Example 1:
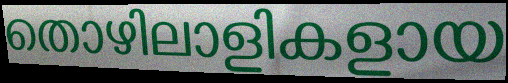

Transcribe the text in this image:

തൊഴിലാളികളായ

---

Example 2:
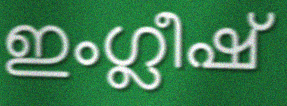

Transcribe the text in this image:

ഇംഗ്ലീഷ്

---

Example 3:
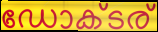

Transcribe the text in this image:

ഡോക്ടര്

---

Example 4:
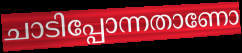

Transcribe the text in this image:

ചാടിപ്പോന്നതാണോ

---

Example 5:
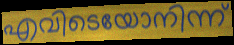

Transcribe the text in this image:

എവിടെയോനിന്ന്